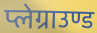
प्लेग्राउण्ड